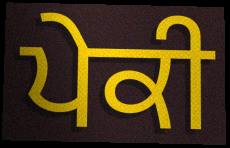
ਪੇਕੀ